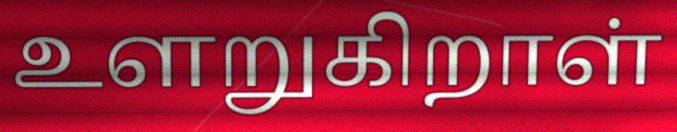
உளறுகிறாள்